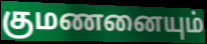
குமணனையும்